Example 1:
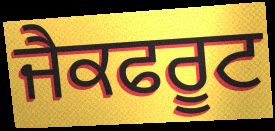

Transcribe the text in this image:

ਜੈਕਫਰੂਟ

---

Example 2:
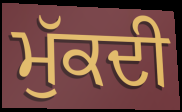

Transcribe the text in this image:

ਮੁੱਕਦੀ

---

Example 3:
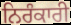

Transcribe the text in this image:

ਨਿਰੰਕਾਰੀ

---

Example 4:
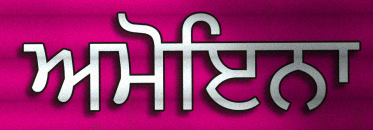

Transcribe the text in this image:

ਅਮੋਇਨਾ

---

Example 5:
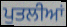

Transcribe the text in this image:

ਪੁਤਲੀਆਂ